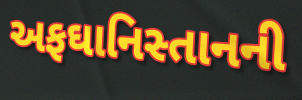
અફઘાનિસ્તાનની